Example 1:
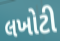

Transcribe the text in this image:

લખોટી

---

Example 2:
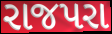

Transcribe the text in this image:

રાજપરા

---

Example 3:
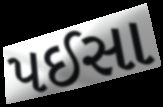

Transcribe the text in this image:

પઈસા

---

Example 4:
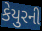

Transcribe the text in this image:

કેયુરની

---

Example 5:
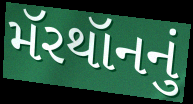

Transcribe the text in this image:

મૅરથૉનનું